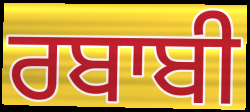
ਰਬਾਬੀ